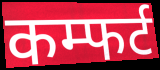
कम्फर्ट